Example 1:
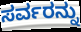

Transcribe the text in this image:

ಸರ್ವರನ್ನು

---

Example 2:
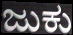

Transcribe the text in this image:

ಜುಕು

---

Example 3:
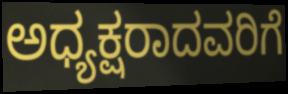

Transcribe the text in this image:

ಅಧ್ಯಕ್ಷರಾದವರಿಗೆ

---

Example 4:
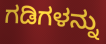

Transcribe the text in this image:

ಗಡಿಗಳನ್ನು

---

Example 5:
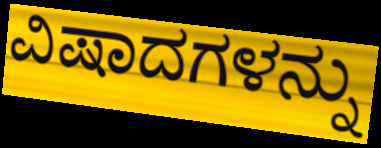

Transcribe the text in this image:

ವಿಷಾದಗಳನ್ನು